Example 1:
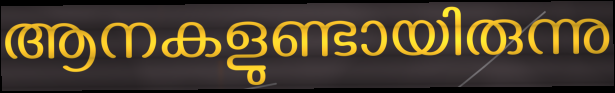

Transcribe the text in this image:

ആനകളുണ്ടായിരുന്നു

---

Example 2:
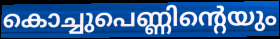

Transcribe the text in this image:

കൊച്ചുപെണ്ണിന്റെയും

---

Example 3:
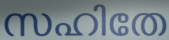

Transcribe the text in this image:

സഹിതേ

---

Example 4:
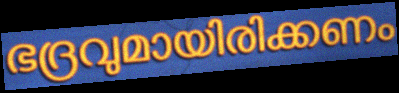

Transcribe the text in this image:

ഭദ്രവുമായിരിക്കണം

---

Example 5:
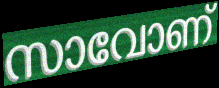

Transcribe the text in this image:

സാവോണ്